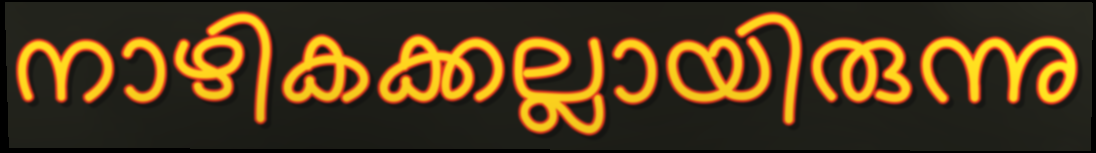
നാഴികക്കല്ലായിരുന്നു